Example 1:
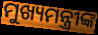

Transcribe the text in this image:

ମୁଖ୍ୟମନ୍ତ୍ରୀଙ୍କ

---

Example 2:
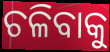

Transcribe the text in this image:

ଚଳିବାକୁ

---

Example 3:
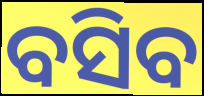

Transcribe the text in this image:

ବସିବ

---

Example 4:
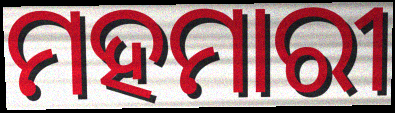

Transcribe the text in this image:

ମହମାରୀ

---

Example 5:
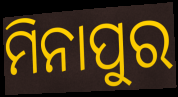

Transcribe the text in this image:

ମିନାପୁର